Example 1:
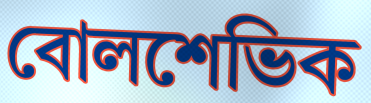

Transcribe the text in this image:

বোলশেভিক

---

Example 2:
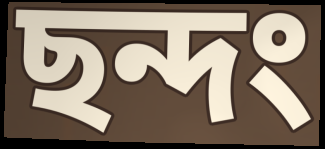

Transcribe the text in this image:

ছন্দং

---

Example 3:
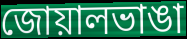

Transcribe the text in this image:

জোয়ালভাঙা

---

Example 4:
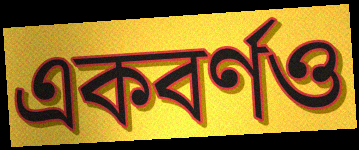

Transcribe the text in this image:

একবর্ণও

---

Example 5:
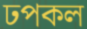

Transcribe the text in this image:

ঢপকল